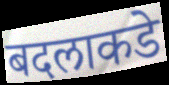
बदलाकडे